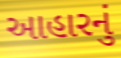
આહારનું